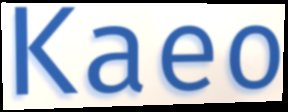
Kaeo